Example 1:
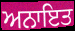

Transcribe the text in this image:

ਅਨਾਇਤ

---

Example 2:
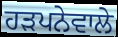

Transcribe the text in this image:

ਹੜਪਨੇਵਾਲੇ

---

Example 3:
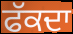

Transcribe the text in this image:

ਫੱਕਦਾ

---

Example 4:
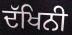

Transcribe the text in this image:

ਦੱਖਿਨੀ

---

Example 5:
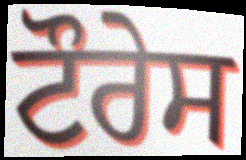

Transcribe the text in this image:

ਟੌਰੇਸ